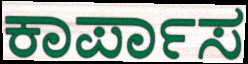
ಕಾರ್ಪಾಸ